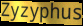
Zyzyphus